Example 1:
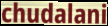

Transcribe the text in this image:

chudalani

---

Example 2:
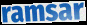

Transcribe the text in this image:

ramsar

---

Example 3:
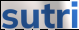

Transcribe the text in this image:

sutri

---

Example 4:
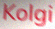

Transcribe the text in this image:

Kolgi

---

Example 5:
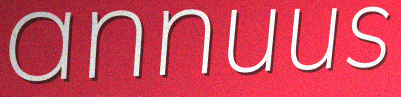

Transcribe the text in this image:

annuus